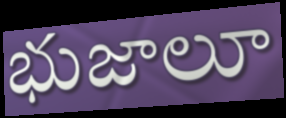
భుజాలూ